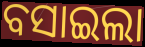
ବସାଇଲା